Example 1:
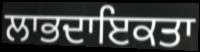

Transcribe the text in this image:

ਲਾਭਦਾਇਕਤਾ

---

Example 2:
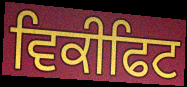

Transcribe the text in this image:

ਵਿਕੀਫਿਟ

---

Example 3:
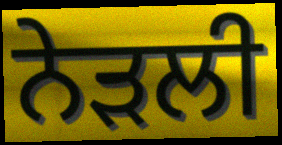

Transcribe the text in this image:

ਨੇੜਲੀ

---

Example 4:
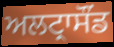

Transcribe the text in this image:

ਅਲਟ੍ਰਾਸੌਂਡ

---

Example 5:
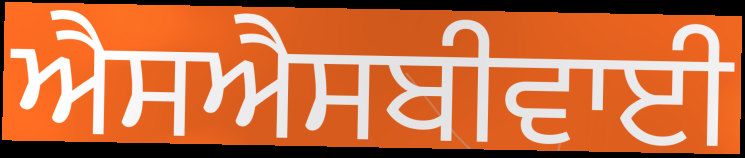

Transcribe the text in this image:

ਐਸਐਸਬੀਵਾਈ